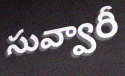
సువ్వారీ